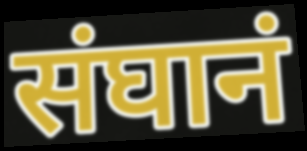
संघानं